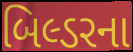
બિલ્ડરના